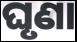
ଘୃଣା